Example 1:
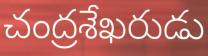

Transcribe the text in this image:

చంద్రశేఖరుడు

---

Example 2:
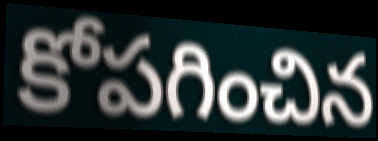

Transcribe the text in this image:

కోపగించిన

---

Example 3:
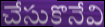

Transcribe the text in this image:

చేసుకొనేవి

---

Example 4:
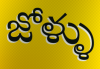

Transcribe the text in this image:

జోళ్ళు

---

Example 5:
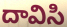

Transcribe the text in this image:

దావిసి